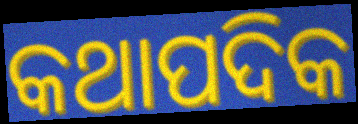
କଥାପଦିକ